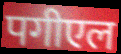
पगीएल